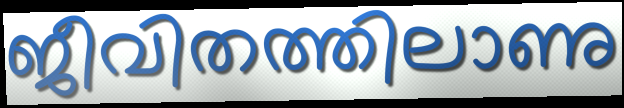
ജീവിതത്തിലാണു